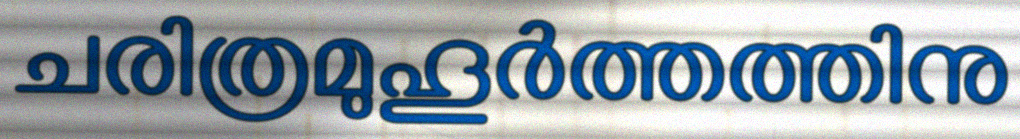
ചരിത്രമുഹൂർത്തത്തിനു